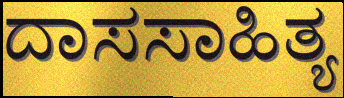
ದಾಸಸಾಹಿತ್ಯ